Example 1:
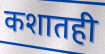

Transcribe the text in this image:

कशातही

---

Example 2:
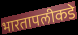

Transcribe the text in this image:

भारतापलीकडे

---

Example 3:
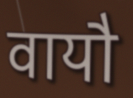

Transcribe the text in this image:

वायौ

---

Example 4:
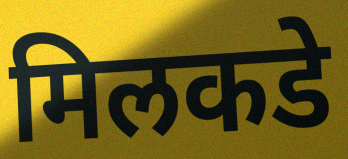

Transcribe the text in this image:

मिलकडे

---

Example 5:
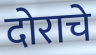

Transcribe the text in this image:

दोराचे